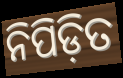
ନିପିଡ଼ିତ